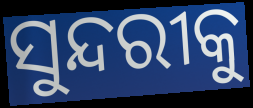
ସୁନ୍ଦରୀକୁ